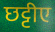
छट्टीए